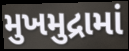
મુખમુદ્રામાં